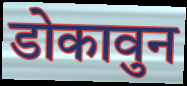
डोकावुन